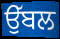
ਉੱਬਲ